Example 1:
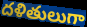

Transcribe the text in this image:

దళితులుగా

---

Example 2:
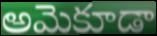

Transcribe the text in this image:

అమెకూడా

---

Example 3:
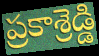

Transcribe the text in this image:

ప్రకాశ్రెడ్డి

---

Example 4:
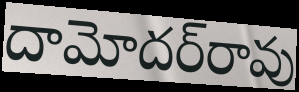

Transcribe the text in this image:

దామోదర్‌రావు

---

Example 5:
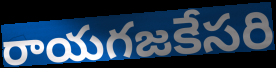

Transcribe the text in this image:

రాయగజకేసరి